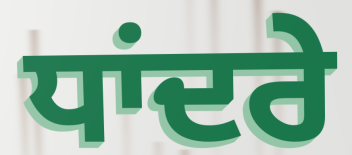
ਧਾਂਦਰੇ